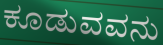
ಕೂಡುವವನು